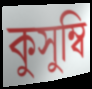
কুসুম্বি